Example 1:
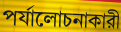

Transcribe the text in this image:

পর্যালোচনাকারী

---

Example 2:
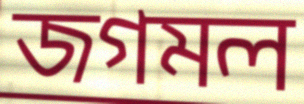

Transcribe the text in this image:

জগমল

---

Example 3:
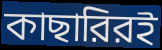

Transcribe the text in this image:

কাছারিরই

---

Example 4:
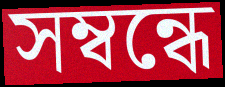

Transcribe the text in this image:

সম্বন্ধে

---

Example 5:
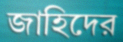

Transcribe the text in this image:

জাহিদের